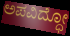
ಅಪವಿದ್ಧೋ